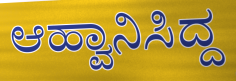
ಆಹ್ವಾನಿಸಿದ್ದ